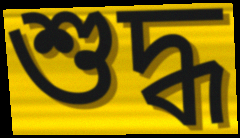
শুদ্ধ